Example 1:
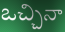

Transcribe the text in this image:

ఒచ్చినా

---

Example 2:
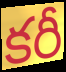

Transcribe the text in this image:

కరీ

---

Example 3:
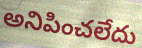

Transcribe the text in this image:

అనిపించలేదు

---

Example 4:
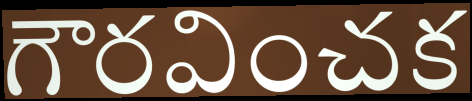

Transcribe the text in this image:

గౌరవించక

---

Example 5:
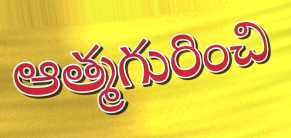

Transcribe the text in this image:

ఆత్మగురించి